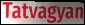
Tatvagyan